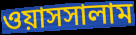
ওয়াসসালাম